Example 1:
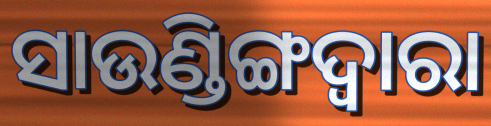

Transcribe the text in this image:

ସାଉଣ୍ଡିଙ୍ଗଦ୍ୱାରା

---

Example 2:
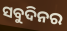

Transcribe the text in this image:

ସବୁଦିନର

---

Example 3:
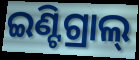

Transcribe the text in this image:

ଇଣ୍ଟିଗ୍ରାଲ୍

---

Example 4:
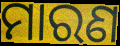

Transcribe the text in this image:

ମାରଣ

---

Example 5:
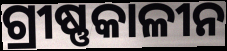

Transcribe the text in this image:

ଗ୍ରୀଷ୍ଣକାଳୀନ